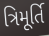
ત્રિમૂર્તિ